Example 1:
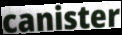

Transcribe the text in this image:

canister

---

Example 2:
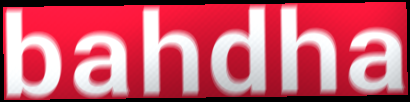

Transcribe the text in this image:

bahdha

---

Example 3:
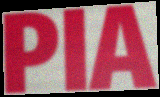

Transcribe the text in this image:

PIA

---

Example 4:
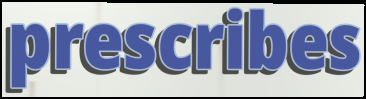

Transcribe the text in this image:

prescribes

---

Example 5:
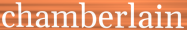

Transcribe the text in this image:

chamberlain